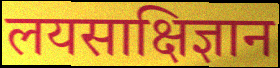
लयसाक्षिज्ञान